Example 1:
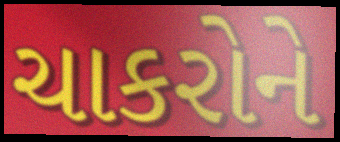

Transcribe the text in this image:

ચાકરોને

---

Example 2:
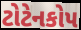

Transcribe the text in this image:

ટોટેનકોપ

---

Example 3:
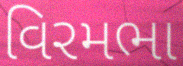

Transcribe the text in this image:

વિરમભા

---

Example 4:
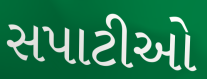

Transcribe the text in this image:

સપાટીઓ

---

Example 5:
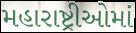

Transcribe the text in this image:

મહારાષ્ટ્રીઓમાં